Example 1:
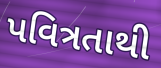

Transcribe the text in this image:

પવિત્રતાથી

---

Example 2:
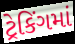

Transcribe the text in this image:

ટ્રેકિંગમાં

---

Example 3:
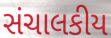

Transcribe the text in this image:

સંચાલકીય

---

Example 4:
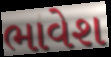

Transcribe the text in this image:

ભાવેશ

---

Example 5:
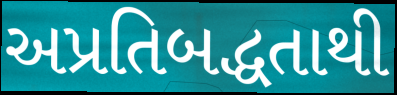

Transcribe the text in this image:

અપ્રતિબદ્ધતાથી